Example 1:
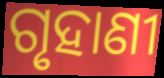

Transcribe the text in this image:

ଗୃହାଣୀ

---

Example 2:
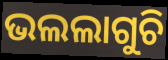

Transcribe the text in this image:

ଭଲଲାଗୁଚି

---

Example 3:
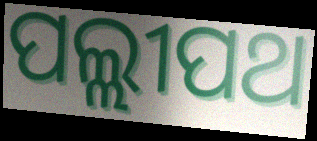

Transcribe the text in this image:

ପଲ୍ଲୀପଥ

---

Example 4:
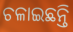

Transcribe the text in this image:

ଚଳାଇଛନ୍ତି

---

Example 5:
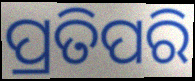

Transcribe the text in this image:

ପ୍ରତିପରି